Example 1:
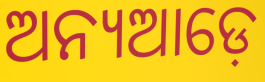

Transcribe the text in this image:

ଅନ୍ୟଆଡ଼େ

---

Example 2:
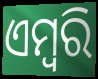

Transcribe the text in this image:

ଏମ୍ବରି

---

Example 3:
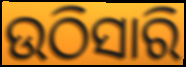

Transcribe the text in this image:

ଉଠିସାରି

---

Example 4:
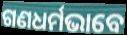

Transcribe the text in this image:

ଗଣଧର୍ମଭାବେ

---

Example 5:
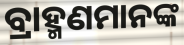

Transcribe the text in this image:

ବ୍ରାହ୍ମଣମାନଙ୍କ